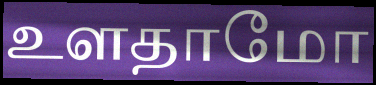
உளதாமோ